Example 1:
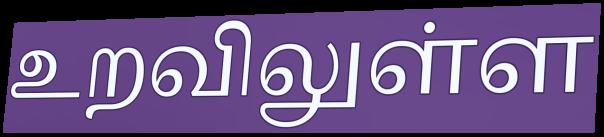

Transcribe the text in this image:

உறவிலுள்ள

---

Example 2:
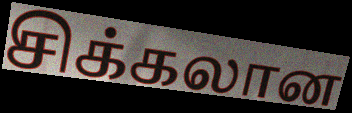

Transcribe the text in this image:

சிக்கலான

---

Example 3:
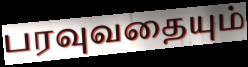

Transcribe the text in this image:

பரவுவதையும்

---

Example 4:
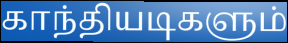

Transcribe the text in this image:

காந்தியடிகளும்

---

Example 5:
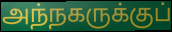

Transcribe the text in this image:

அந்நகருக்குப்